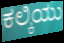
ಕಲ್ಕಿಯು